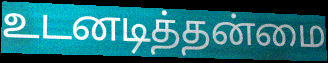
உடனடித்தன்மை